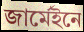
জার্মেইনে